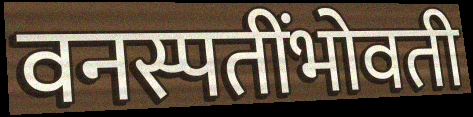
वनस्पतींभोवती